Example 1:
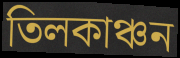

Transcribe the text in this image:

তিলকাঞ্চন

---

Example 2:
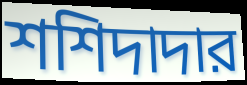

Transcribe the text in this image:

শশিদাদার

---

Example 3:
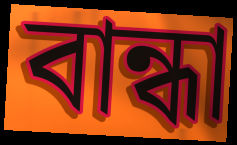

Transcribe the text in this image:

বান্ধা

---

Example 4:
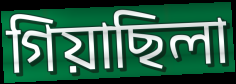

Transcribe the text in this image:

গিয়াছিলা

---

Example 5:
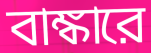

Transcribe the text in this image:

বাঙ্কারে